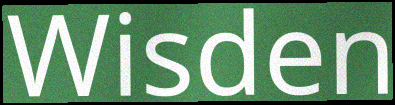
Wisden